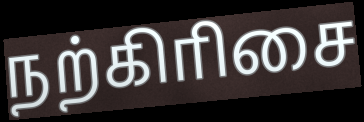
நற்கிரிசை